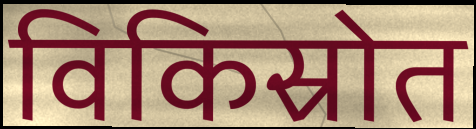
विकिस्रोत